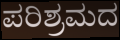
ಪರಿಶ್ರಮದ